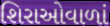
શિરાઓવાળાં